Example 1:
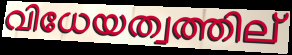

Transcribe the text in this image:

വിധേയത്വത്തില്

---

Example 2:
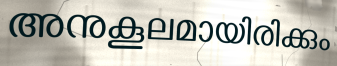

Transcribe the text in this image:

അനുകൂലമായിരിക്കും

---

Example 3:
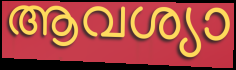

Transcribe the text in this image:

ആവശ്യാ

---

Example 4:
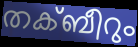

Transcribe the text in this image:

തക്ബീറും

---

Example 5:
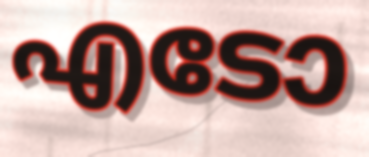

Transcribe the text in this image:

എടോ